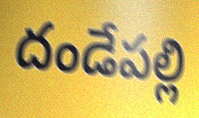
దండేపల్లి